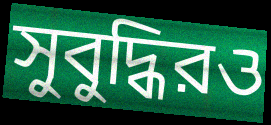
সুবুদ্ধিরও